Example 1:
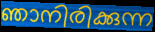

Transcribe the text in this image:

ഞാനിരിക്കുന്ന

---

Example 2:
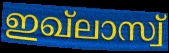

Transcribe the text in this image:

ഇഖ്ലാസ്വ്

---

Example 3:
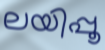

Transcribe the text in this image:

ലയിപ്പൂ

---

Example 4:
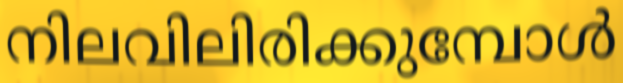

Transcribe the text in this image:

നിലവിലിരിക്കുമ്പോൾ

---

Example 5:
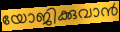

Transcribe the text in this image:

യോജിക്കുവാൻ